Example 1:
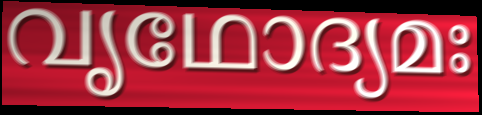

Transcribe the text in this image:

വൃഥോദ്യമഃ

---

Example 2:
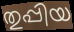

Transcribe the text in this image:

തുപ്പിയ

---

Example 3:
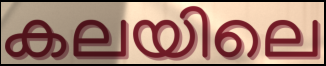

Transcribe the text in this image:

കലയിലെ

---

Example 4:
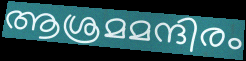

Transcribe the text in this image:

ആശ്രമമന്ദിരം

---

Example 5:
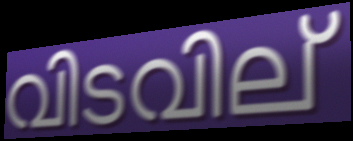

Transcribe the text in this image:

വിടവില്